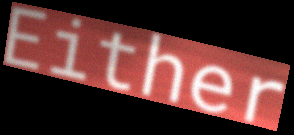
Either